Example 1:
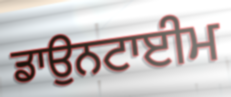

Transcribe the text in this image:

ਡਾਉਨਟਾਈਮ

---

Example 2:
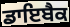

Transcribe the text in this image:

ਡਾਇਬੈਕ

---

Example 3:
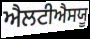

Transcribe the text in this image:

ਐਲਟੀਐਸਯੂ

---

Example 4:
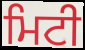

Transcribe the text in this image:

ਮਿਟੀ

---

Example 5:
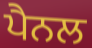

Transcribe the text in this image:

ਪੈਨਲ